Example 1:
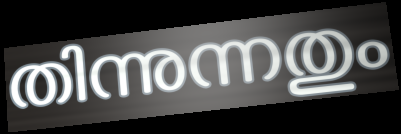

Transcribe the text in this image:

തിന്നുന്നതും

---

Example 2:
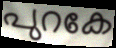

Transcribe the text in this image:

പുറകേ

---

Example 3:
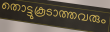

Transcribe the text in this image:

തൊട്ടുകൂടാത്തവരും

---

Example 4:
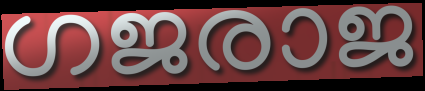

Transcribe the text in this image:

ഗജരാജ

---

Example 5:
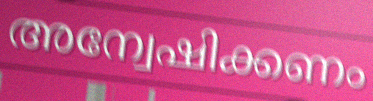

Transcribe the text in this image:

അന്വേഷിക്കണം